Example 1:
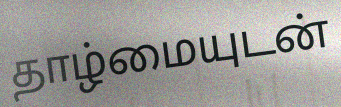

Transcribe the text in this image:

தாழ்மையுடன்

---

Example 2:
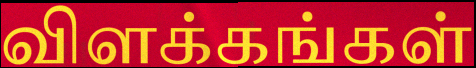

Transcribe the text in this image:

விளக்கங்கள்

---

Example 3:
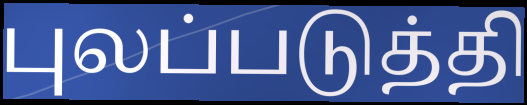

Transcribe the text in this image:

புலப்படுத்தி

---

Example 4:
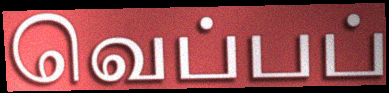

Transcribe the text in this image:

வெப்பப்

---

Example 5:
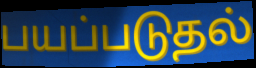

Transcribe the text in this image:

பயப்படுதல்